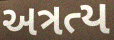
અત્રત્ય